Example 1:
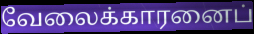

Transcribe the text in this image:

வேலைக்காரனைப்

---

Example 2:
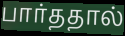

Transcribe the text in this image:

பார்ததால்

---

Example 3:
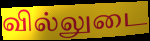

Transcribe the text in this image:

வில்லுடை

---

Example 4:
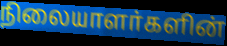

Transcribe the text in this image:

நிலையாளர்களின்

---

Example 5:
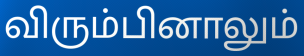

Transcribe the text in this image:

விரும்பினாலும்